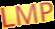
LMP